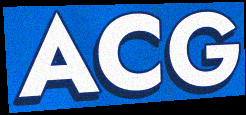
ACG